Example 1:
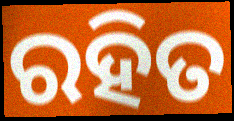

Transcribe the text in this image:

ରହିତ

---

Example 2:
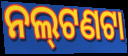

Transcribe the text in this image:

ନଲ୍‍ଟଣଟା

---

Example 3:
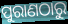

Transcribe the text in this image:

ପୁରାଣଠାରୁ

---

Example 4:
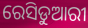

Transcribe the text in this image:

ରେସିଡୁଆରୀ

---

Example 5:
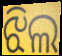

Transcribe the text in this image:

ଝିଲ